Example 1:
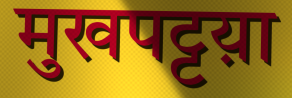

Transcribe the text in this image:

मुखपट्टय़ा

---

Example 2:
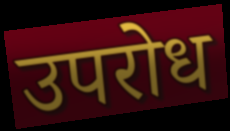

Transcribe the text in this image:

उपरोध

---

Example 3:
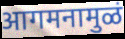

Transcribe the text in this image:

आगमनामुळं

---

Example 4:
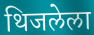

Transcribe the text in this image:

थिजलेला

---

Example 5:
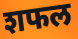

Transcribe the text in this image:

शफल